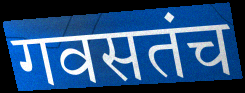
गवसतंच